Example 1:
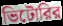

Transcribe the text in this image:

ভিটোরির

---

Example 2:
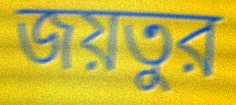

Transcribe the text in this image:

জয়তুর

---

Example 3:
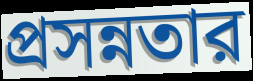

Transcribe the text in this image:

প্রসন্নতার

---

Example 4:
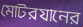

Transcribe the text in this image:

মোটরযানের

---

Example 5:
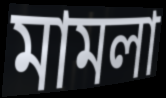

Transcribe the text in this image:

মামলা